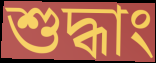
শুদ্ধাং